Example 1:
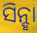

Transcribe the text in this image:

ସିନ୍ହା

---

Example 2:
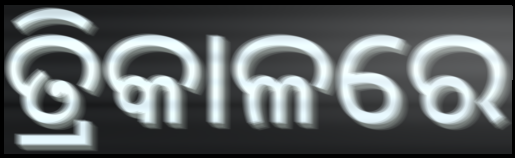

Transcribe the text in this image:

ତ୍ରିକାଳରେ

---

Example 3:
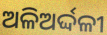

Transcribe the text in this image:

ଅଳିଅର୍ଦ୍ଦଳୀ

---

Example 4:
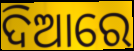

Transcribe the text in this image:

ଦିଆରେ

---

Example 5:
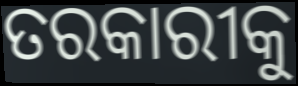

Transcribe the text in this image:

ତରକାରୀକୁ